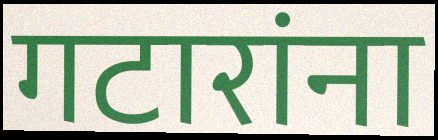
गटारांना